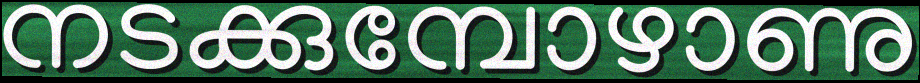
നടക്കുമ്പോഴാണു